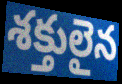
శక్తులైన